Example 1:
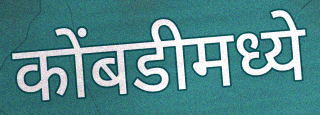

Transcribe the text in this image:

कोंबडीमध्ये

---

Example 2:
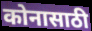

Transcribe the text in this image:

कोनासाठी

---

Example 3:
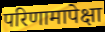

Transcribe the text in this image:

परिणामापेक्षा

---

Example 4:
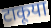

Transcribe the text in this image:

टाकूया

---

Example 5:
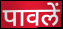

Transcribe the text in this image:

पावलें